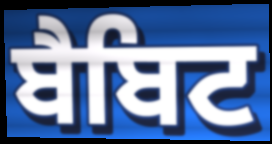
ਬੈਬਿਟ